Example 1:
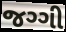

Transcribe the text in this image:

જગ્ગી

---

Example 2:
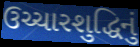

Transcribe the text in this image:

ઉચ્ચારશુદ્ધિનું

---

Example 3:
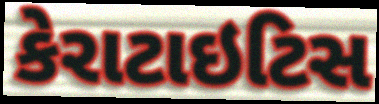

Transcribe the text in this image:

કેરાટાઇટિસ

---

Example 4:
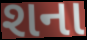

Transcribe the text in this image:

શના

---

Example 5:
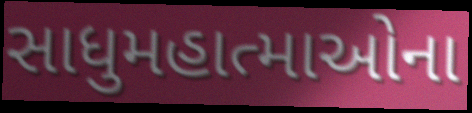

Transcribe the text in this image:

સાધુમહાત્માઓના